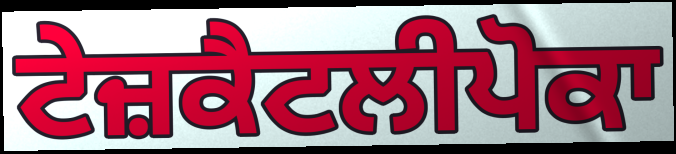
ਟੇਜ਼ਕੈਟਲੀਪੋਕਾ